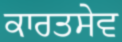
ਕਾਰਤਸੇਵ